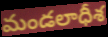
మండలాధీశ